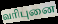
வரிபுனை